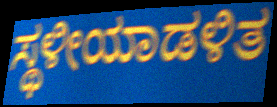
ಸ್ಥಳೀಯಾಡಳಿತ